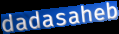
dadasaheb